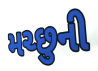
મચ્છુની